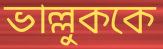
ভাল্লুককে